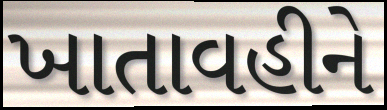
ખાતાવહીને